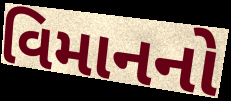
વિમાનનો